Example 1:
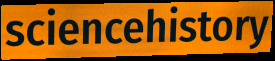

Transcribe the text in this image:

sciencehistory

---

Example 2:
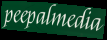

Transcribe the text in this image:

peepalmedia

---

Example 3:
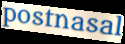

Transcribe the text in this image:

postnasal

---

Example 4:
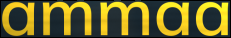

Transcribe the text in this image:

ammaa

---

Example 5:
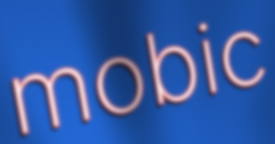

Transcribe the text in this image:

mobic